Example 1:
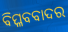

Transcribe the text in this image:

ବିପ୍ଳବବାଦର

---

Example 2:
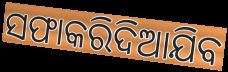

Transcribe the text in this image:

ସଫାକରିଦିଆଯିବ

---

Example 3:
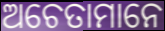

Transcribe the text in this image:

ଅଚେତାମାନେ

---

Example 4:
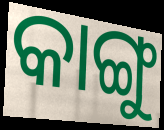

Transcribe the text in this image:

କାଙ୍ଗୁ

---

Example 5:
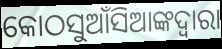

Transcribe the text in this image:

କୋଠସୁଆଁସିଆଙ୍କଦ୍ବାରା